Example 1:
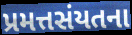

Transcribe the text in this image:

પ્રમત્તસંયતના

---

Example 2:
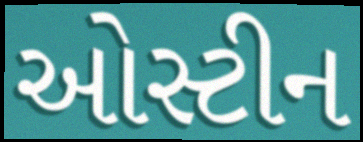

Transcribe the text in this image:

ઓસ્ટીન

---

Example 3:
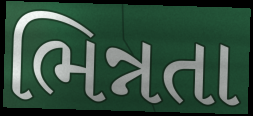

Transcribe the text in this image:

ભિન્નતા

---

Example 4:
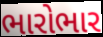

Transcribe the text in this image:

ભારોભાર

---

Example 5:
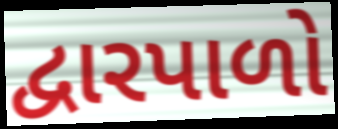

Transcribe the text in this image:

દ્વારપાળો